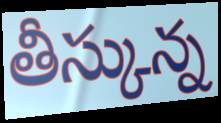
తీస్కున్న